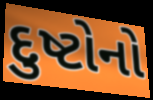
દુષ્ટોનો